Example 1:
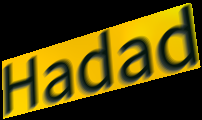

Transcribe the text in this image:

Hadad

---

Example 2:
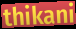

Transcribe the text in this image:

thikani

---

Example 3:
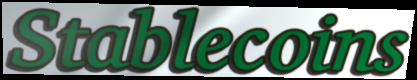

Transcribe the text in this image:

Stablecoins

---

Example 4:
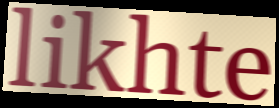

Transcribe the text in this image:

likhte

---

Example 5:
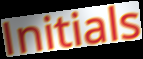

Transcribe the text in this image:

Initials